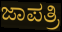
ಜಾಪತ್ರಿ